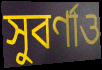
সুবর্ণাও